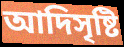
আদিসৃষ্টি